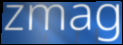
zmag